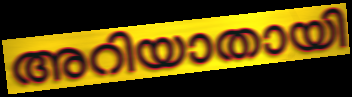
അറിയാതായി